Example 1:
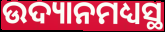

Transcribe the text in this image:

ଉଦ୍ୟାନମଧ୍ୟସ୍ଥ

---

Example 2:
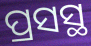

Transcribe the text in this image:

ପ୍ରସସ୍ଥ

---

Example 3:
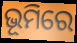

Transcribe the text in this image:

ଭୂମିରେ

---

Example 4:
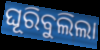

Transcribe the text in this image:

ଘୂରିବୁଲିଲା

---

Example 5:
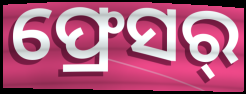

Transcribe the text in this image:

ଫ୍ରେସର୍